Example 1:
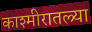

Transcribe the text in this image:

काश्मीरातल्या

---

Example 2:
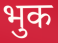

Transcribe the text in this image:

भुक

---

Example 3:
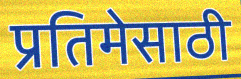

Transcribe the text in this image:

प्रतिमेसाठी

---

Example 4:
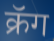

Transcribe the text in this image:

क्रॅग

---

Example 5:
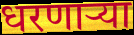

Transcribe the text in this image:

धरणाऱ्या